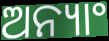
ଅନ୍ୟାଂ